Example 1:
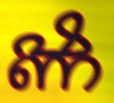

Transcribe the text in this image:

ഷ്ണ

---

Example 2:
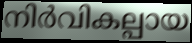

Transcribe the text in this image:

നിർവികല്പായ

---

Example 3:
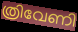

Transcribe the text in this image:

ത്രിവേണി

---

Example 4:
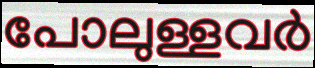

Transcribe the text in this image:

പോലുള്ളവർ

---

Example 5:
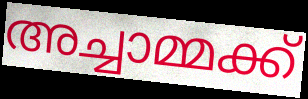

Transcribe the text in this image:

അച്ചാമ്മക്ക്